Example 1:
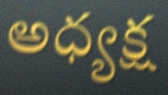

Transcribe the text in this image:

అధ్యక్ష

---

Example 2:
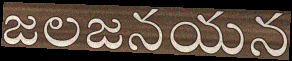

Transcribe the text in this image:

జలజనయన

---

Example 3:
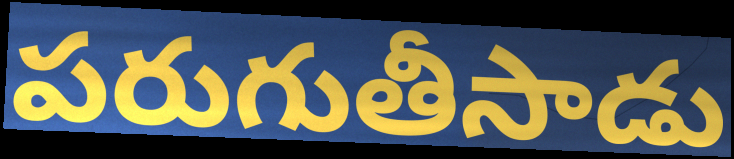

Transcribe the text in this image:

పరుగుతీసాడు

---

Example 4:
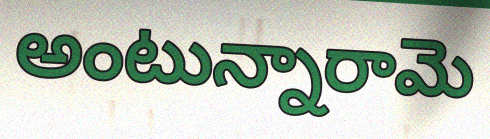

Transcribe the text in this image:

అంటున్నారామె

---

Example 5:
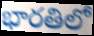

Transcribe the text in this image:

భారతిలో